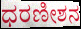
ಧರಣೀಶನ